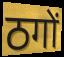
ठगों